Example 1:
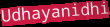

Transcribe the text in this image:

Udhayanidhi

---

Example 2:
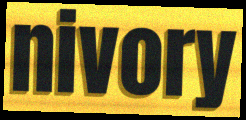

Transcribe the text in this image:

nivory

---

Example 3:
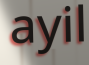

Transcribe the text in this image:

ayil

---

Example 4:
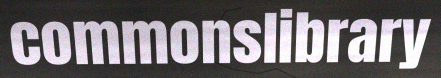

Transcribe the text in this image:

commonslibrary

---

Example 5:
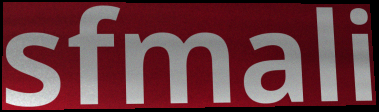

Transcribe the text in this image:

sfmali